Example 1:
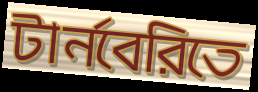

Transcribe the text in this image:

টার্নবেরিতে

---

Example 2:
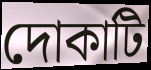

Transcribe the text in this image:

দোকাটি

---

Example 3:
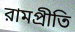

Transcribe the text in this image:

রামপ্রীতি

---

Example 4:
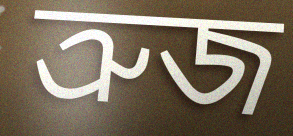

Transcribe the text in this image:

ত্রুজ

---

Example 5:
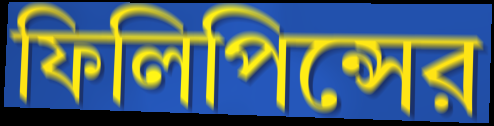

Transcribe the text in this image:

ফিলিপিন্সের